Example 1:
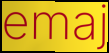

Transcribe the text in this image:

emaj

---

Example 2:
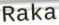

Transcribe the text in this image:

Raka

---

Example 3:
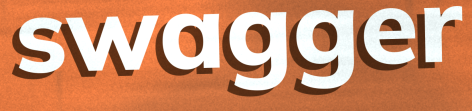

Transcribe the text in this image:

swagger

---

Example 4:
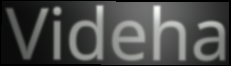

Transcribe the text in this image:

Videha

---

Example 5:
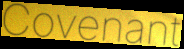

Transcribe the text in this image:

Covenant